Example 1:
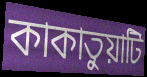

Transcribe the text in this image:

কাকাতুয়াটি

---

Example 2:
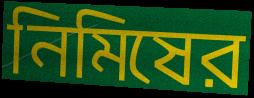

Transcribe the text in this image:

নিমিষের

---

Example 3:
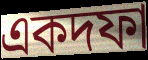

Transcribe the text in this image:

একদফা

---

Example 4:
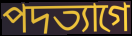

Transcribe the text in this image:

পদত্যাগে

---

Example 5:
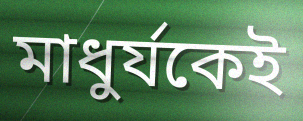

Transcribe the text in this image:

মাধুর্যকেই